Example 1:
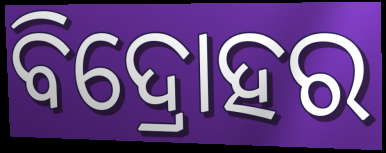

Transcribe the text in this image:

ବିଦ୍ରୋହର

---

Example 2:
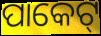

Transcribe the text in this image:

ପାକେଟ୍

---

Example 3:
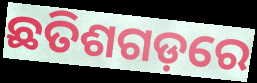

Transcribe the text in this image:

ଛତିଶଗଡ଼ରେ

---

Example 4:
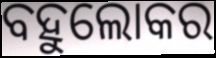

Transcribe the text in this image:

ବହୁଲୋକର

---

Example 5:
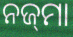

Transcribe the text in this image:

ନଜ୍‌ମା